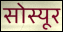
सोस्यूर